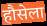
हौसेला